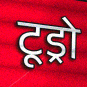
टूड्रो